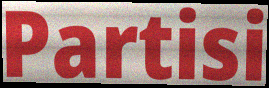
Partisi